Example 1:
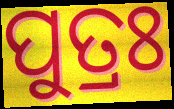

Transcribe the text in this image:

ପୁତ୍ରଃ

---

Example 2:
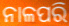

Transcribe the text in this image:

ନାଳପରି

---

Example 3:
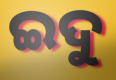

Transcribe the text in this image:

ଇଦୁ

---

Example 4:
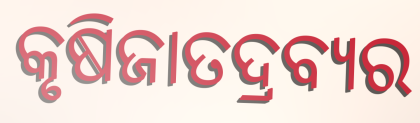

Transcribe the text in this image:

କୃଷିଜାତଦ୍ରବ୍ୟର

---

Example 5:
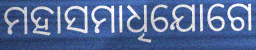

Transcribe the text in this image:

ମହାସମାଧିଯୋଗେ